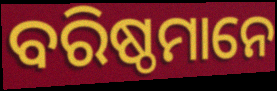
ବରିଷ୍ଠମାନେ